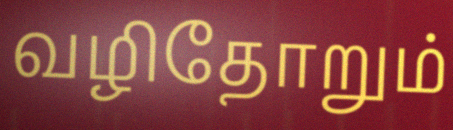
வழிதோறும்